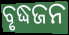
ବୃଦ୍ଧଜନ